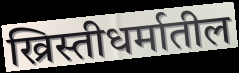
ख्रिस्तीधर्मातील